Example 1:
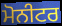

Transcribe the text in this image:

ਮੋਨੀਟਰ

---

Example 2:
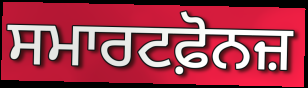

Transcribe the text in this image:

ਸਮਾਰਟਫ਼ੋਨਜ਼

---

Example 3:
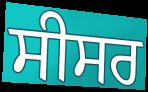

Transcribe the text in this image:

ਸੀਸਰ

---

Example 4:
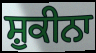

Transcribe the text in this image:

ਸ਼ੁਕੀਨਾ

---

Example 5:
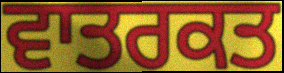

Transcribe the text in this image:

ਵਾਤਰਕਤ